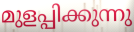
മുളപ്പിക്കുന്നു